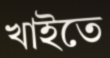
খাইতে